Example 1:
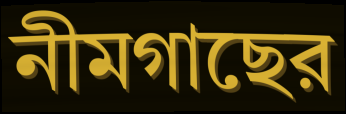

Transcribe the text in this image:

নীমগাছের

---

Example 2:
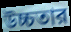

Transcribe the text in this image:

উচ্চতার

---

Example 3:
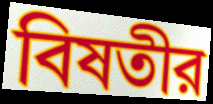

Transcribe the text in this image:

বিষতীর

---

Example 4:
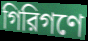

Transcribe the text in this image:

গিরিগণে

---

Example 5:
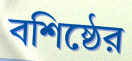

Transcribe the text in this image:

বশিষ্ঠের